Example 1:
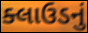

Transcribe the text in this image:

ક્લાઉડનું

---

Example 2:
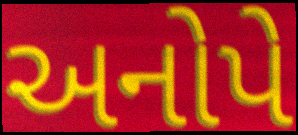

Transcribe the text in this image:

અનોપે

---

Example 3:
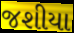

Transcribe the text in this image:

જશીયા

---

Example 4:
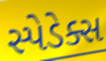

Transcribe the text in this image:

સ્પેડેક્સ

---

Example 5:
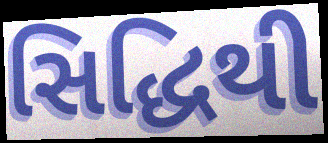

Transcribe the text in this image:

સિદ્ધિથી